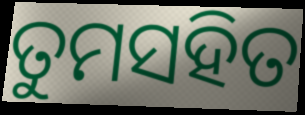
ତୁମସହିତ